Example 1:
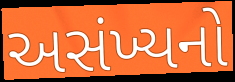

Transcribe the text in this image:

અસંખ્યનો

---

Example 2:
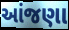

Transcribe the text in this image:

આંજણા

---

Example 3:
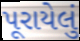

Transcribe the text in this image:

પૂરાયેલું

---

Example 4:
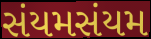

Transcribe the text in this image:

સંયમસંયમ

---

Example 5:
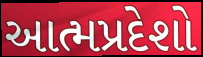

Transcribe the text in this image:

આત્મપ્રદેશો